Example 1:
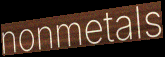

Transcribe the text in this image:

nonmetals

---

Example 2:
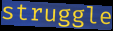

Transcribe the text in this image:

struggle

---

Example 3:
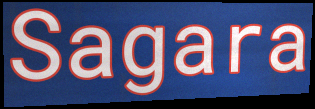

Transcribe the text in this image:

Sagara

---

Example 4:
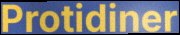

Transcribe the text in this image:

Protidiner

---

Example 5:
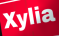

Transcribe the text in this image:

Xylia